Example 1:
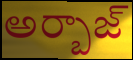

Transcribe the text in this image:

అర్బాజ్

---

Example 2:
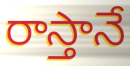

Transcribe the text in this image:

రాస్తానే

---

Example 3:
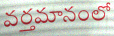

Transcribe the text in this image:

వర్తమానంలో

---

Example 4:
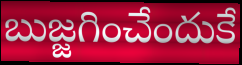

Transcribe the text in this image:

బుజ్జగించేందుకే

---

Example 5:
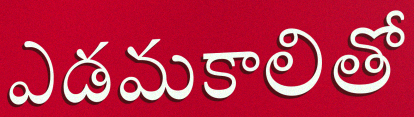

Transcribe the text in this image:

ఎడమకాలితో